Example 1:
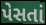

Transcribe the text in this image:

પેસતાં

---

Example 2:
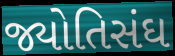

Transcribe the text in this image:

જ્યોતિસંઘ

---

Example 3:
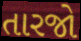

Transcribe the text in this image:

તારજો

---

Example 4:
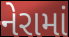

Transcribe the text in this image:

નેરામાં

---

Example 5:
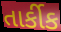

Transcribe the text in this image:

તાર્કીક